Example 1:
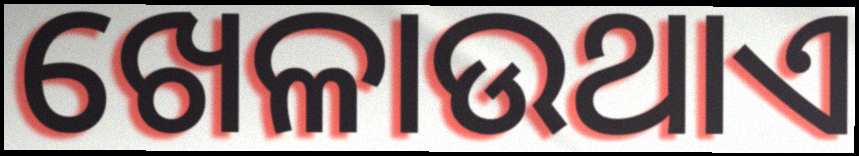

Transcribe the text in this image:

ଖେଳାଉଥାଏ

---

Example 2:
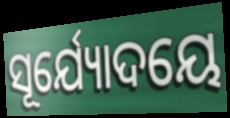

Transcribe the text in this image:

ସୂର୍ଯ୍ୟୋଦୟେ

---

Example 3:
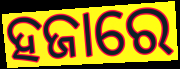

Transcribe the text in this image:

ହଜାରେ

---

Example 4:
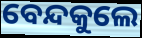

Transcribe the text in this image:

ବେନ୍ଦକୁଲେ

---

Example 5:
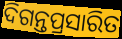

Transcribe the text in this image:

ଦିଗନ୍ତପ୍ରସାରିତ